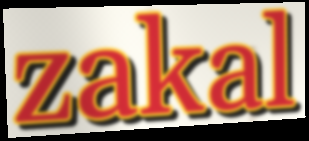
zakal